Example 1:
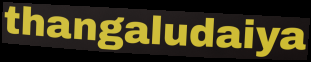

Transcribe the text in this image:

thangaludaiya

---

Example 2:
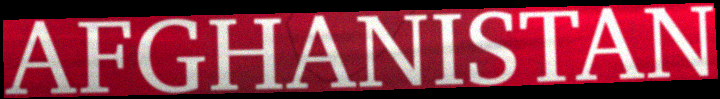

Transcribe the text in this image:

AFGHANISTAN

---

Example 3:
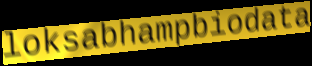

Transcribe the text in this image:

loksabhampbiodata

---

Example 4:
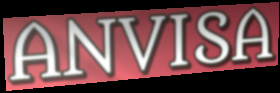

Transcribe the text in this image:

ANVISA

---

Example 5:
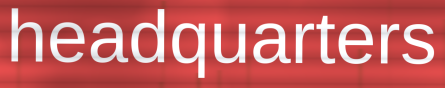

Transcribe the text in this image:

headquarters